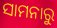
ସାମନାରୁ